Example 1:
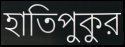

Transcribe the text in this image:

হাতিপুকুর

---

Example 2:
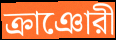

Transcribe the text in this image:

ক্রাঞোরী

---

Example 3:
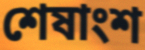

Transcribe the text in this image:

শেষাংশ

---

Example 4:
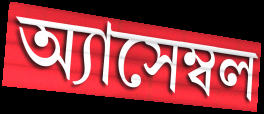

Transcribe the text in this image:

অ্যাসেম্বল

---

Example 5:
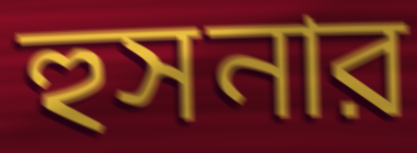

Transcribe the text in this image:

হুসনার